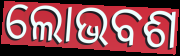
ଲୋଭବଶ